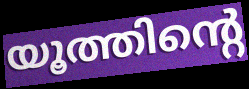
യൂത്തിന്റെ